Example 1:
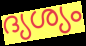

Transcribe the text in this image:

ദ്യശ്യം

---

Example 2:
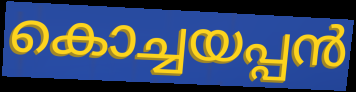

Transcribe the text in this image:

കൊച്ചയപ്പൻ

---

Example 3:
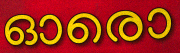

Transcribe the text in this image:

ഓരൊ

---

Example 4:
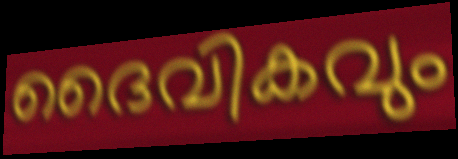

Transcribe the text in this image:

ദൈവികവും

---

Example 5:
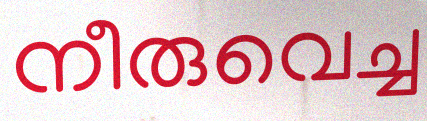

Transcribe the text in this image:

നീരുവെച്ച